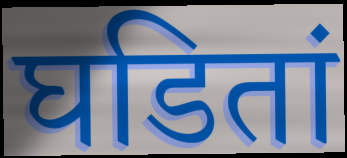
घडितां